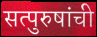
सत्पुरुषांची